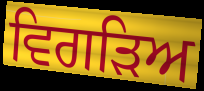
ਵਿਗੜਿਅ